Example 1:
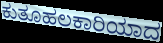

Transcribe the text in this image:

ಕುತೂಹಲಕಾರಿಯಾದ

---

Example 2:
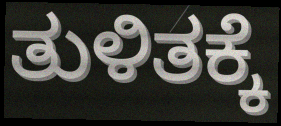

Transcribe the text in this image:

ತುಳಿತಕ್ಕೆ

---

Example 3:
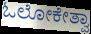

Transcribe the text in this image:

ಓಲೋಕೇತ್ವಾ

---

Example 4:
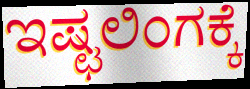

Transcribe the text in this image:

ಇಷ್ಟಲಿಂಗಕ್ಕೆ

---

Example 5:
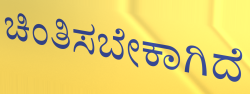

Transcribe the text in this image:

ಚಿಂತಿಸಬೇಕಾಗಿದೆ